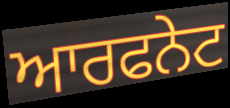
ਆਰਫਨੇਟ